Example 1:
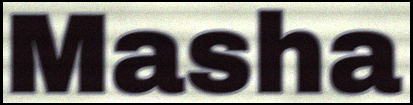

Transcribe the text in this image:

Masha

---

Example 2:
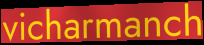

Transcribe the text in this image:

vicharmanch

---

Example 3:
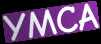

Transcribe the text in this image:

YMCA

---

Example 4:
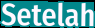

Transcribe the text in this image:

Setelah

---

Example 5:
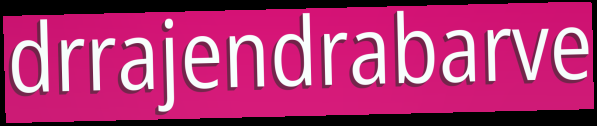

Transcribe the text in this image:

drrajendrabarve